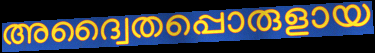
അദ്വൈതപ്പൊരുളായ